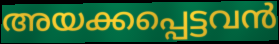
അയക്കപ്പെട്ടവൻ